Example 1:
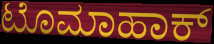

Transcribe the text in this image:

ಟೊಮಾಹಾಕ್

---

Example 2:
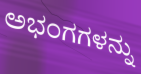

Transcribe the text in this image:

ಅಭಂಗಗಳನ್ನು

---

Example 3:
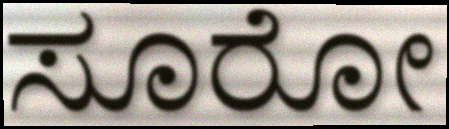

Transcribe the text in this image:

ಸೂರೋ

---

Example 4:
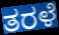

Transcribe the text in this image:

ತರಳೆ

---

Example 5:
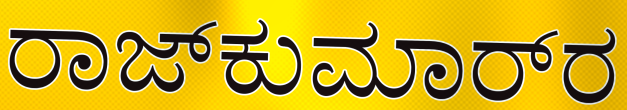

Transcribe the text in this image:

ರಾಜ್‌ಕುಮಾರ್‌ರ